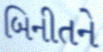
બિનીતને